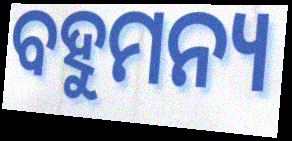
ବହୁମନ୍ୟ